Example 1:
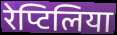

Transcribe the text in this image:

रेप्टिलिया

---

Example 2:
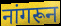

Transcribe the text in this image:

नांगरून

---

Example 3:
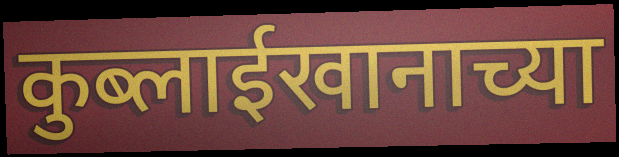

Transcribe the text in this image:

कुब्लाईखानाच्या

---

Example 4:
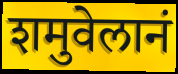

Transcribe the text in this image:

शमुवेलानं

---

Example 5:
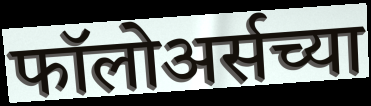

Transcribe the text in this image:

फॉलोअर्सच्या